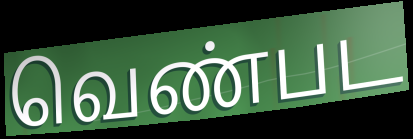
வெண்பட